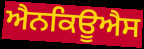
ਐਨਕਿਊਐਸ